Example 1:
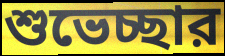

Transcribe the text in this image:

শুভেচ্ছার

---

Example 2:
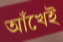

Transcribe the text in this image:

আঁখেই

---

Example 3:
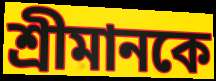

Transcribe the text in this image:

শ্রীমানকে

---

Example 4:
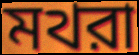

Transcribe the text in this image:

মথরা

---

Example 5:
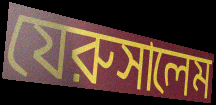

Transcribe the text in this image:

যেরুসালেম